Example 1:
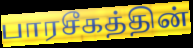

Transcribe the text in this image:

பாரசீகத்தின்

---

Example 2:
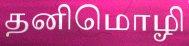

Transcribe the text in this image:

தனிமொழி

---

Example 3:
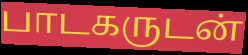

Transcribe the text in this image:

பாடகருடன்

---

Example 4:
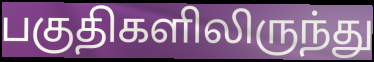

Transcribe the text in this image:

பகுதிகளிலிருந்து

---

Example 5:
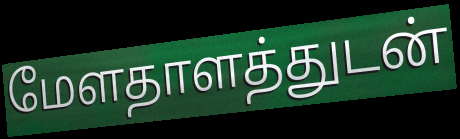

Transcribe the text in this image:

மேளதாளத்துடன்